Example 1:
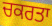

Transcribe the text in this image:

ਚਕਰਤਾ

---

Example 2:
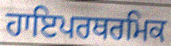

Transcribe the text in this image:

ਹਾਇਪਰਥਰਮਿਕ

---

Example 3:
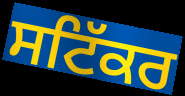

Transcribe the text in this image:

ਸਟਿੱਕਰ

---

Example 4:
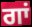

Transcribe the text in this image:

ਗਾਂ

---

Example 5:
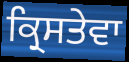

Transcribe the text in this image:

ਕ੍ਰਿਸਤੇਵਾ